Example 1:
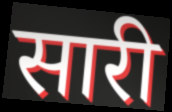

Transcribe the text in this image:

सारी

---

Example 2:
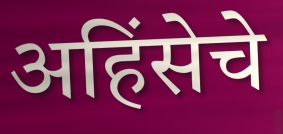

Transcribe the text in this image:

अहिंसेचे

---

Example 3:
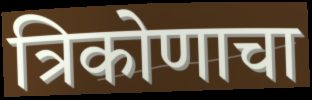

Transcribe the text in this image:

त्रिकोणाचा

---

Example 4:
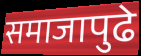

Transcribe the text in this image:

समाजापुढे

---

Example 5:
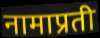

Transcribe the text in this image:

नामाप्रती